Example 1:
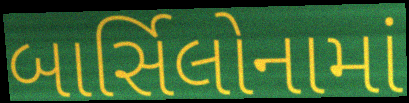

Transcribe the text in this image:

બાર્સિલોનામાં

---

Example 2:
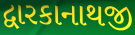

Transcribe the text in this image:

દ્વારકાનાથજી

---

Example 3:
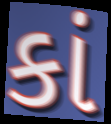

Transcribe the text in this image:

કાં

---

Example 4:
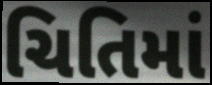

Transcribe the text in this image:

ચિતિમાં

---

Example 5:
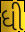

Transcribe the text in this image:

ધી